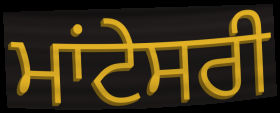
ਮਾਂਟੇਸਰੀ